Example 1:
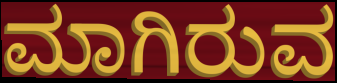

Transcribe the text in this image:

ಮಾಗಿರುವ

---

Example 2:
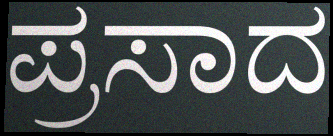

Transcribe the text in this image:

ಪ್ರಸಾದ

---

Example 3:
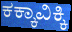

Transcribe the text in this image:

ಕಕ್ಕಾವಿಕ್ಕಿ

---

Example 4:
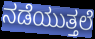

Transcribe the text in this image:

ನಡೆಯುತ್ತಲೆ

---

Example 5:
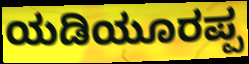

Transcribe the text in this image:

ಯಡಿಯೂರಪ್ಪ